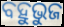
ବହୁଭୁଜ